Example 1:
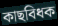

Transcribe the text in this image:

কাছবিধক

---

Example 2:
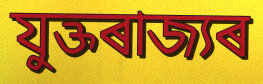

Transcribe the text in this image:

যুক্তৰাজ্যৰ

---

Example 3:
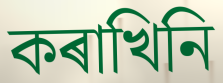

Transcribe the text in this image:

কৰাখিনি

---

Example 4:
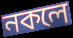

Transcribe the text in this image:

নকলে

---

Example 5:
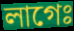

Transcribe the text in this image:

লাগেঃ